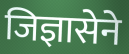
जिज्ञासेने